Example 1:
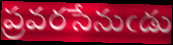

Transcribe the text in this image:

ప్రవరసేనుఁడు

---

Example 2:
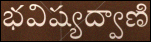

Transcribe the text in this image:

భవిష్యద్వాణి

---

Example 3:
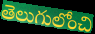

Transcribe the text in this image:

తెలుగులోంచి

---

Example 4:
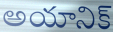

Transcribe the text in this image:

అయానిక్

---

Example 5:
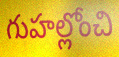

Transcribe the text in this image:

గుహల్లోంచి